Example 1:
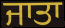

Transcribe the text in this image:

ਜਾਤਾ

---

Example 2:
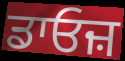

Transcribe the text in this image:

ਡਾਓਜ਼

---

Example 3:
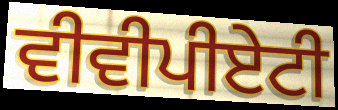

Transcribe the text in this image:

ਵੀਵੀਪੀਏਟੀ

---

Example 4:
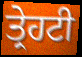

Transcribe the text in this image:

ਤ੍ਰੇਹਟੀ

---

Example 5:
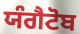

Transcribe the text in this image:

ਯੰਗੈਟੋਬ